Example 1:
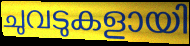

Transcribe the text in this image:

ചുവടുകളായി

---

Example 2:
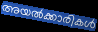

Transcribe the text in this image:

അയൽക്കാരികൾ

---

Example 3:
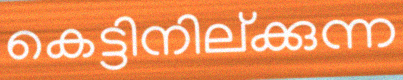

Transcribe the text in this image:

കെട്ടിനില്ക്കുന്ന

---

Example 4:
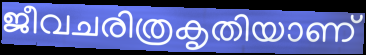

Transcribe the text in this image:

ജീവചരിത്രകൃതിയാണ്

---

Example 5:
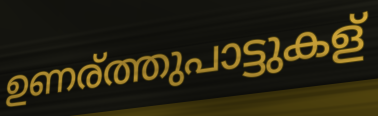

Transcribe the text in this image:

ഉണര്ത്തുപാട്ടുകള്